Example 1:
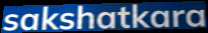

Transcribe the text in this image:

sakshatkara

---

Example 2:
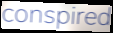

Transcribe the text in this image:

conspired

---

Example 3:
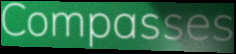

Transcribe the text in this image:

Compasses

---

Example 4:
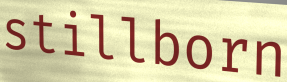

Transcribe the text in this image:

stillborn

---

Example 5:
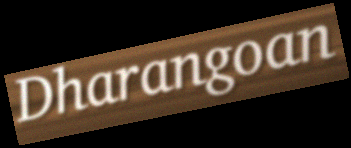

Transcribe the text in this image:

Dharangoan